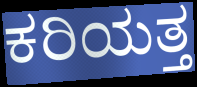
ಕರಿಯತ್ತ